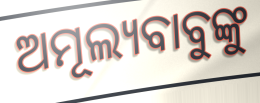
ଅମୂଲ୍ୟବାବୁଙ୍କୁ